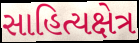
સાહિત્યક્ષેત્ર